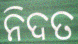
ନିଦତ